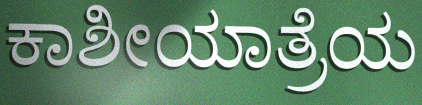
ಕಾಶೀಯಾತ್ರೆಯ